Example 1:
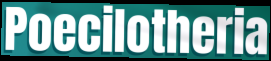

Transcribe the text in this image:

Poecilotheria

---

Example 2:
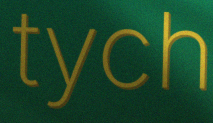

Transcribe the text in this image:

tych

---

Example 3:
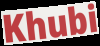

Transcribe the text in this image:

Khubi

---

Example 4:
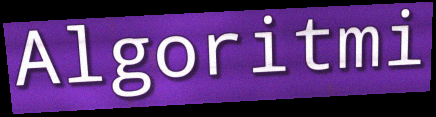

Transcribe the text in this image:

Algoritmi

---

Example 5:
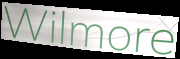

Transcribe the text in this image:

Wilmore